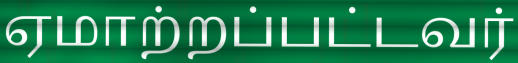
ஏமாற்றப்பட்டவர்